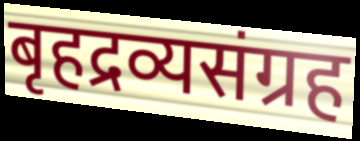
बृहद्रव्यसंग्रह